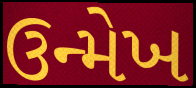
ઉન્મેખ